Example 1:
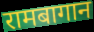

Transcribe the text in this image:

रामबागान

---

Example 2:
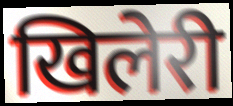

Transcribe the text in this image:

खिलेरी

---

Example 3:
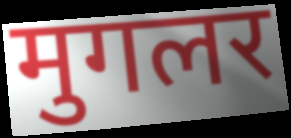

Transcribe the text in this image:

मुगलर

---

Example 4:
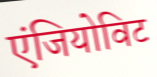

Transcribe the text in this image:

एंजियोविट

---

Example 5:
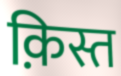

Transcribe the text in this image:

क़िस्त